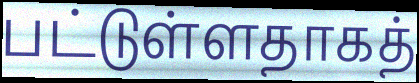
பட்டுள்ளதாகத்